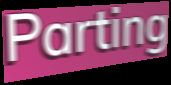
Parting